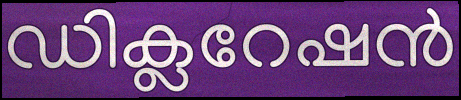
ഡിക്ലറേഷൻ